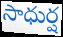
సాధుర్ష